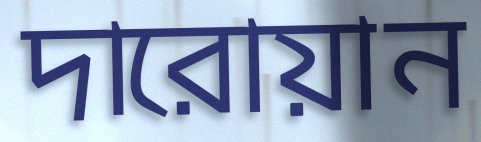
দারোয়ান